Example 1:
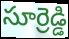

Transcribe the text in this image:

సూర్రెడ్డి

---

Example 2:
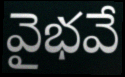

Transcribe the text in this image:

వైభవే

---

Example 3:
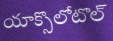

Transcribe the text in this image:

యాక్సొలోటొల్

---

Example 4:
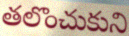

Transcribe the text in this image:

తలొంచుకుని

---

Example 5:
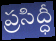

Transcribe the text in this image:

ప్రసిద్ధీ